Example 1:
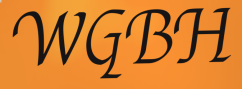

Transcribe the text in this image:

WGBH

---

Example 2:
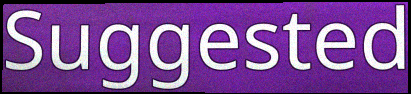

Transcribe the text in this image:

Suggested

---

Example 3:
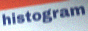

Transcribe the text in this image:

histogram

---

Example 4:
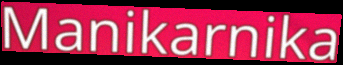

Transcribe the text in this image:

Manikarnika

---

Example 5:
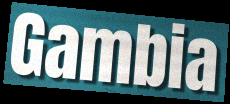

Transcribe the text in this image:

Gambia